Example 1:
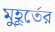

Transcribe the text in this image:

মুহূর্তের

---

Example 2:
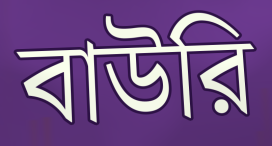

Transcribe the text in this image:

বাউরি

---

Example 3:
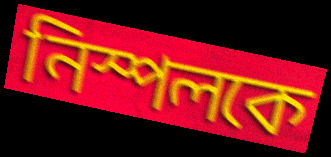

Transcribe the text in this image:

নিস্পলকে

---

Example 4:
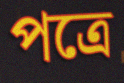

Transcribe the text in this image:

পত্রে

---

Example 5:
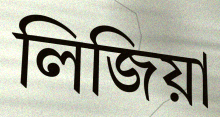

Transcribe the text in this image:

লিজিয়া